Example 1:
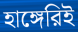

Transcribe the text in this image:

হাঙ্গেরিই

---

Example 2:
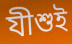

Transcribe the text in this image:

যীশুই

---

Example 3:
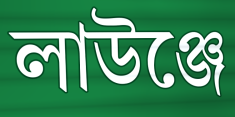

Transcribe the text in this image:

লাউঞ্জে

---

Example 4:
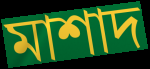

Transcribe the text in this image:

মাশাদ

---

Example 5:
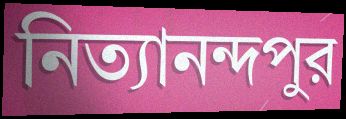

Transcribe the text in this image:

নিত্যানন্দপুর